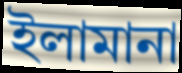
ইলামানা